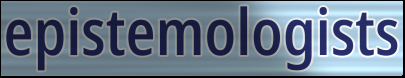
epistemologists